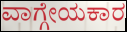
ವಾಗ್ಗೇಯಕಾರ